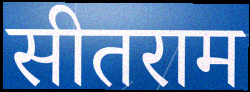
सीतराम